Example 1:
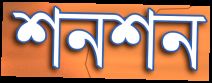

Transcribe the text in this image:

শনশন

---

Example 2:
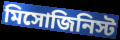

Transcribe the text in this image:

মিসোজিনিস্ট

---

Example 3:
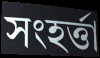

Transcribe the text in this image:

সংহর্ত্তা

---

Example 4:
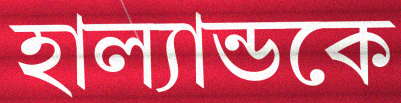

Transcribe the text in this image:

হাল্যান্ডকে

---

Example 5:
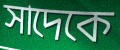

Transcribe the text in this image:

সাদেকে